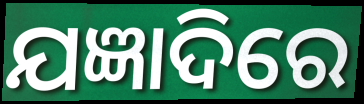
ଯଜ୍ଞାଦିରେ